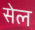
सेल